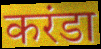
करंडा